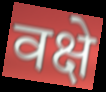
वक्षे